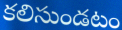
కలిసుండటం